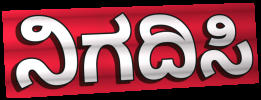
ನಿಗದಿಸಿ